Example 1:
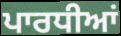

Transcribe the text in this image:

ਪਾਰਧੀਆਂ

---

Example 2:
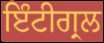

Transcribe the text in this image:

ਇੰਟੀਗ੍ਰਲ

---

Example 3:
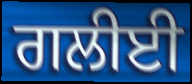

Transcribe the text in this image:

ਗਲੀਈ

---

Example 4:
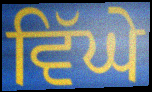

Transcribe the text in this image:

ਵਿੱਘੇ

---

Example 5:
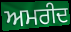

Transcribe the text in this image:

ਅਮਰੀਦ